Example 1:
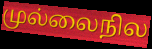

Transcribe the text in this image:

முல்லைநில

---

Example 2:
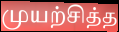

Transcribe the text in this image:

முயற்சித்த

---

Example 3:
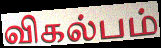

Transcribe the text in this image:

விகல்பம்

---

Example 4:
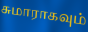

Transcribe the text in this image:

சுமாராகவும்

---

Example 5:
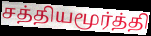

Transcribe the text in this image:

சத்தியமூர்த்தி